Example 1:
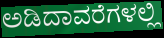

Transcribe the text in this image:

ಅಡಿದಾವರೆಗಳಲ್ಲಿ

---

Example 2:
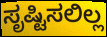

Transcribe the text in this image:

ಸೃಷ್ಟಿಸಲಿಲ್ಲ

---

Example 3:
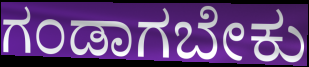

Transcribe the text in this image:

ಗಂಡಾಗಬೇಕು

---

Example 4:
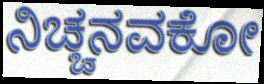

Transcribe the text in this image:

ನಿಚ್ಚನವಕೋ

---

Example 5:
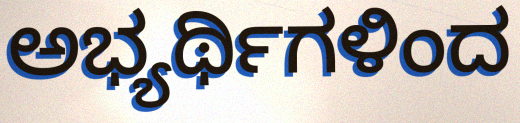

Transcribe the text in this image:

ಅಭ್ಯರ್ಥಿಗಳಿಂದ